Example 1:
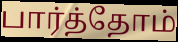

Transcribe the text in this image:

பார்த்தோம்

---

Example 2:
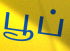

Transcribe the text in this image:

பூப்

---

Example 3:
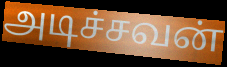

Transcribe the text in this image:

அடிச்சவன்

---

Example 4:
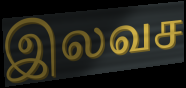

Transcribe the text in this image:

இலவச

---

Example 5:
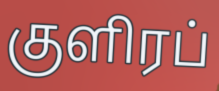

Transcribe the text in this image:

குளிரப்